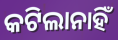
କଟିଲାନାହିଁ